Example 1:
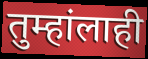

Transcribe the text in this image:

तुम्हांलाही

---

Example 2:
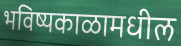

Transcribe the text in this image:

भविष्यकाळामधील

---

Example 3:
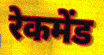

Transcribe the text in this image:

रेकमेंड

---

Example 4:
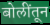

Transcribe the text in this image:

बोलींतून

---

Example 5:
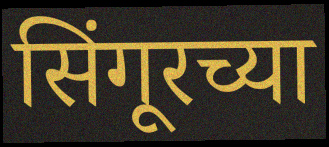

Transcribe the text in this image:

सिंगूरच्या